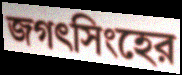
জগৎসিংহের